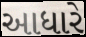
આધારે